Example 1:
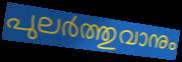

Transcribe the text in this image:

പുലർത്തുവാനും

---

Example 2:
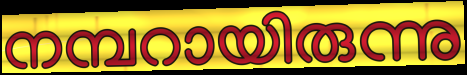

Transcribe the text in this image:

നമ്പറായിരുന്നു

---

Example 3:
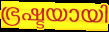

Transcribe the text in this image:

ഭ്രഷ്ടയായി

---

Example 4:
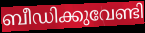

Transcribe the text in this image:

ബീഡിക്കുവേണ്ടി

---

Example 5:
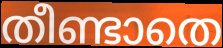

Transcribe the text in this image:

തീണ്ടാതെ